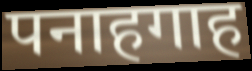
पनाहगाह